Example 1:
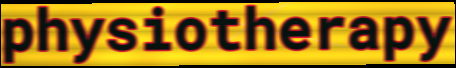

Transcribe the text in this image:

physiotherapy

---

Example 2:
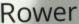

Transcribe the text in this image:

Rower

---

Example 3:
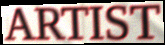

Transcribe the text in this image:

ARTIST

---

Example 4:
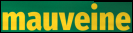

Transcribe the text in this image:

mauveine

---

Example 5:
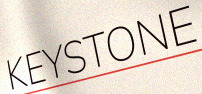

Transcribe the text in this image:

KEYSTONE